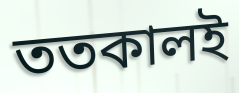
ততকালই